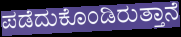
ಪಡೆದುಕೊಂಡಿರುತ್ತಾನೆ